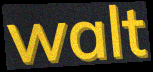
walt